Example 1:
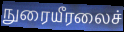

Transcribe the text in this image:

நுரையீரலைச்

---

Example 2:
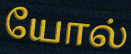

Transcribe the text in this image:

யோல்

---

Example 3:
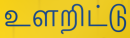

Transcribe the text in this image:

உளறிட்டு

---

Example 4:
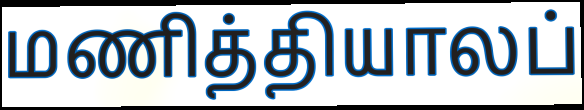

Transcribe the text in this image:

மணித்தியாலப்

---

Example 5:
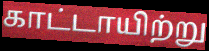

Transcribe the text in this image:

காட்டாயிற்று